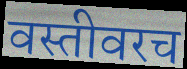
वस्तीवरच